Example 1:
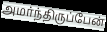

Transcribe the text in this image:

அமர்ந்திருப்பேன்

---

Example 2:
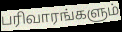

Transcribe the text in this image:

பரிவாரங்களும்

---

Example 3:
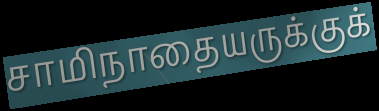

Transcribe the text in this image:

சாமிநாதையருக்குக்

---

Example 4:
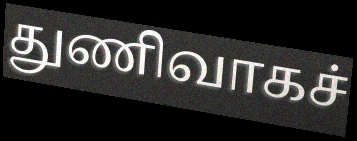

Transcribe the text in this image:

துணிவாகச்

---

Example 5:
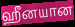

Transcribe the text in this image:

ஹீனயான